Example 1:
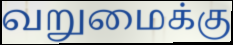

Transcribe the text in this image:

வறுமைக்கு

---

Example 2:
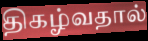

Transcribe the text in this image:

திகழ்வதால்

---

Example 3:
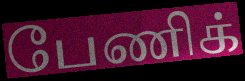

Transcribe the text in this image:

பேணிக்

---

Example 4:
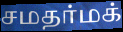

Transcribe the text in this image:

சமதர்மக்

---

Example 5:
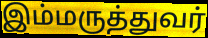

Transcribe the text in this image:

இம்மருத்துவர்